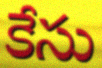
కేసు